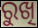
ରୁଖି